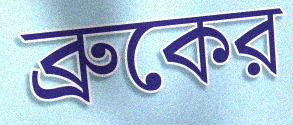
ব্রুকের